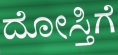
ದೋಸ್ತಿಗೆ